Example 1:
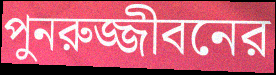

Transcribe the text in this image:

পুনরুজ্জীবনের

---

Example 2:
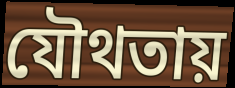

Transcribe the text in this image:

যৌথতায়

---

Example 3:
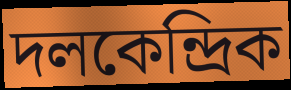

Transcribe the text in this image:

দলকেন্দ্রিক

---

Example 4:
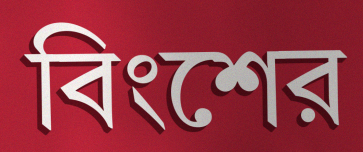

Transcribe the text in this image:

বিংশের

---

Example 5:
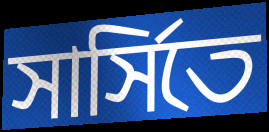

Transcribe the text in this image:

সার্সিতে